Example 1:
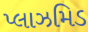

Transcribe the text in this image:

પ્લાઝમિડ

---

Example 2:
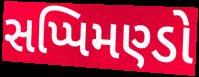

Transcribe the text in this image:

સપ્પિમણ્ડો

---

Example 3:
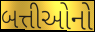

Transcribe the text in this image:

બત્તીઓનો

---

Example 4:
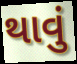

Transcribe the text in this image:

થાવું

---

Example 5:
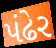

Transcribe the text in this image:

પંઢેર